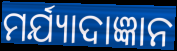
ମର୍ଯ୍ୟାଦାଜ୍ଞାନ